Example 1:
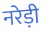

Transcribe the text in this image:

नरेड़ी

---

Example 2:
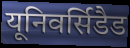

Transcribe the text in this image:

यूनिवर्सिडैड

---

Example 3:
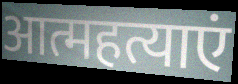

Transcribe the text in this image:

आत्महत्याएं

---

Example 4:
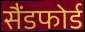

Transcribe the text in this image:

सैंडफोर्ड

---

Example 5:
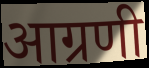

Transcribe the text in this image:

आग्रणी